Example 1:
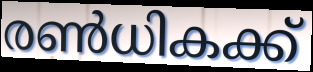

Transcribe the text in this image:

രൺധികക്ക്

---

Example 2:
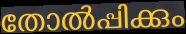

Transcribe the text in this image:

തോൽപ്പിക്കും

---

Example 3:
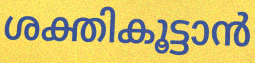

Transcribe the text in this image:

ശക്തികൂട്ടാൻ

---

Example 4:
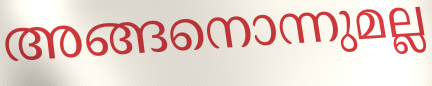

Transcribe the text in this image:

അങ്ങനൊന്നുമല്ല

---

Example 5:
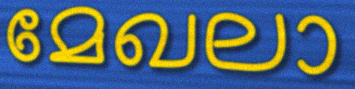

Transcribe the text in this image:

മേഖലാ